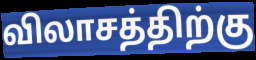
விலாசத்திற்கு